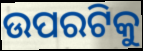
ଉପରଟିକୁ